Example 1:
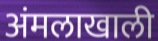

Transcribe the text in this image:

अंमलाखाली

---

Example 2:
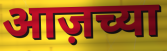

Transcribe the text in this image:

आज़च्या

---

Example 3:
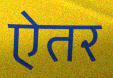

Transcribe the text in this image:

ऐतर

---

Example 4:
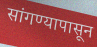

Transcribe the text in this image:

सांगण्यापासून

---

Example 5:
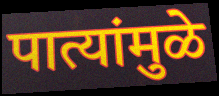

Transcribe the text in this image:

पात्यांमुळे